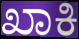
ಖಾಕಿ